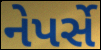
નેપર્સે